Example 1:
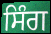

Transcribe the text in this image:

ਸਿੰਗ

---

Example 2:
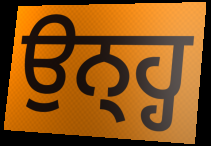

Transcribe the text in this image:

ਉਨ੍ਹ੍ਹ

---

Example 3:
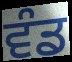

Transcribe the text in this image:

ਵੰਡ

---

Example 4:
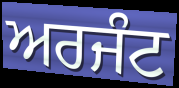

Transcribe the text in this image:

ਅਰਜੰਟ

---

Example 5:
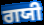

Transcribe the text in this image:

ਗਯੀ